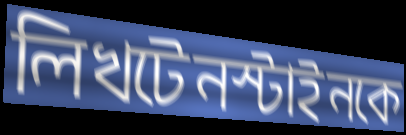
লিখটেনস্টাইনকে